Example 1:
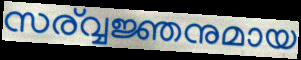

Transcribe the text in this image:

സര്വ്വജ്ഞനുമായ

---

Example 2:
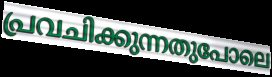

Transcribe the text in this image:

പ്രവചിക്കുന്നതുപോലെ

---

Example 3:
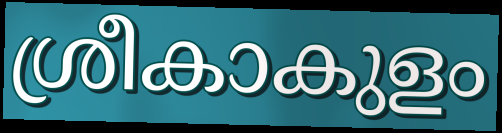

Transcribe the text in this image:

ശ്രീകാകുളം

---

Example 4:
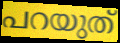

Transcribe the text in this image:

പറയുത്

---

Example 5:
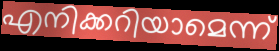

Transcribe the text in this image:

എനിക്കറിയാമെന്ന്